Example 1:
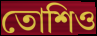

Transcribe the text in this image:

তোশিও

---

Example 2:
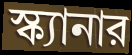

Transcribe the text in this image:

স্ক্যানার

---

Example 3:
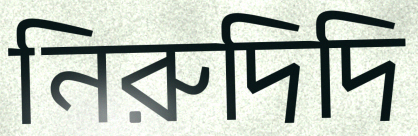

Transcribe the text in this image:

নিরুদিদি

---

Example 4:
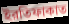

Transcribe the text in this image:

ইরতিফাকাত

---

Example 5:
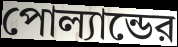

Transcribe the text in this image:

পোল্যান্ডের